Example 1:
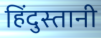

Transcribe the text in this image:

हिंदुस्तानी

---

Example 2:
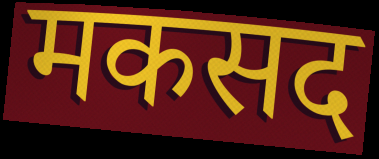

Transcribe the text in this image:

मकसद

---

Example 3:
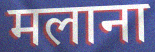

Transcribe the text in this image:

मलाना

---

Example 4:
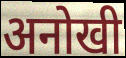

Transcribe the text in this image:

अनोखी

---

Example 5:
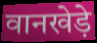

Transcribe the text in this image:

वानखेड़े